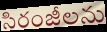
సిరంజీలను